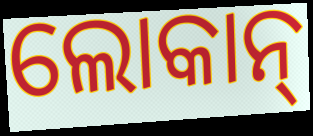
ଲୋକାନ୍